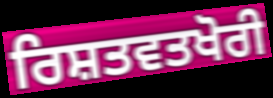
ਰਿਸ਼ਤਵਤਖੋਰੀ